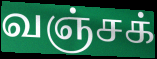
வஞ்சக்